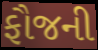
ફૌજની